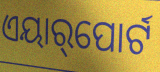
ଏୟାର୍‌ପୋର୍ଟ